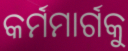
କର୍ମମାର୍ଗକୁ